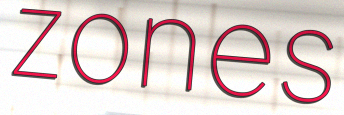
zones